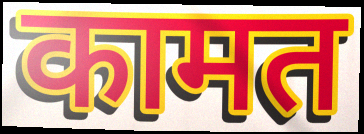
कामत